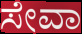
ಸೇವಾ